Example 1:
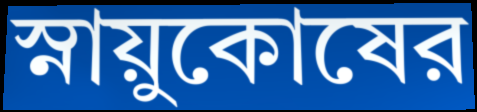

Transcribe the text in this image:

স্নায়ুকোষের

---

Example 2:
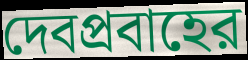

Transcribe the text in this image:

দেবপ্রবাহের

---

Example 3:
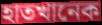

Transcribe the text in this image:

হাতখানেক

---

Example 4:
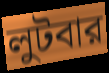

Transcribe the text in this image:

লুটবার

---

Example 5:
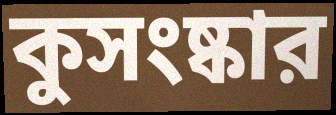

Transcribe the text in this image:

কুসংষ্কার